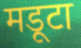
मडूटा